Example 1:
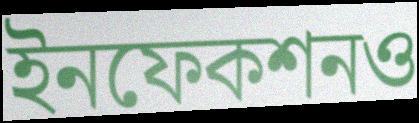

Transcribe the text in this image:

ইনফেকশনও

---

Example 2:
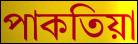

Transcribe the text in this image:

পাকতিয়া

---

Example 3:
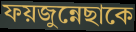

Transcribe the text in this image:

ফয়জুন্নেছাকে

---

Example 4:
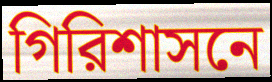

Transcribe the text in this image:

গিরিশাসনে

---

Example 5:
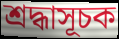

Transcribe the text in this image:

শ্রদ্ধাসূচক